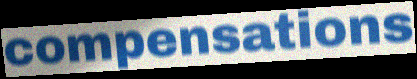
compensations